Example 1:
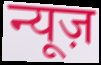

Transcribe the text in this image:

न्यूज़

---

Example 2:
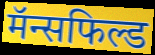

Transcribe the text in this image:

मॅन्सफिल्ड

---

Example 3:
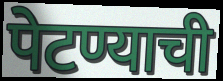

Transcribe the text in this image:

पेटण्याची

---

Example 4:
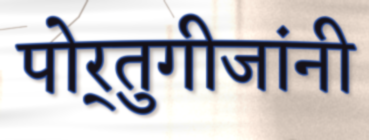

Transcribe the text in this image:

पोर्तुगीजांनी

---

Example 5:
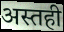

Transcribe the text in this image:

अस्तही